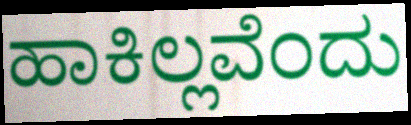
ಹಾಕಿಲ್ಲವೆಂದು